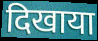
दिखाया